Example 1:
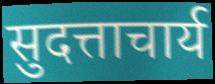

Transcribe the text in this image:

सुदत्ताचार्य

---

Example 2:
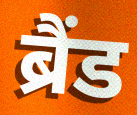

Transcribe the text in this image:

ब्रैंड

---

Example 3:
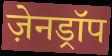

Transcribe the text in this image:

ज़ेनड्रॉप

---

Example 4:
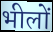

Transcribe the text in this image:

भीलों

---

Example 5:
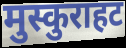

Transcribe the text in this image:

मुस्कुराहट